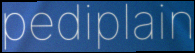
pediplain